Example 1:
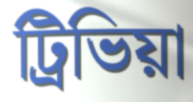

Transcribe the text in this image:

ট্রিভিয়া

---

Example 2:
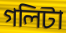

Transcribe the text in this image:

গলিটা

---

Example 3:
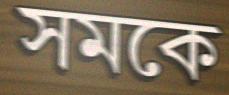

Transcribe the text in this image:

সমকে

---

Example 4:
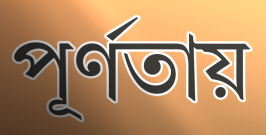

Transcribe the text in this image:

পূর্ণতায়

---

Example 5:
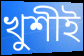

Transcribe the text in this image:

খুশীই